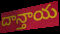
దాన్తాయ